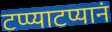
टप्प्याटप्यानं